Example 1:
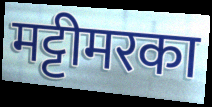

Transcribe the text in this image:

मट्टीमरका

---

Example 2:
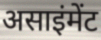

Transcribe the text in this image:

असाइंमेंट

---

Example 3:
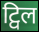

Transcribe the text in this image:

ट्विल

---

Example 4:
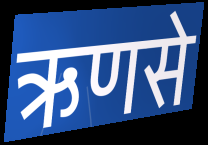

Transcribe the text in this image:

ऋणसे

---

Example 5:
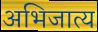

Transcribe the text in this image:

अभिजात्य